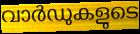
വാർഡുകളുടെ